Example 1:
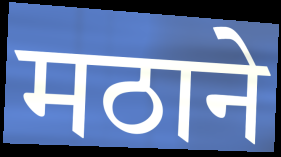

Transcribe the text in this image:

मठाने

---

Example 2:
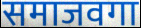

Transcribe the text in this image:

समाजवगा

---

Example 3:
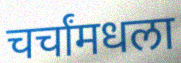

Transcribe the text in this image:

चर्चांमधला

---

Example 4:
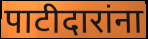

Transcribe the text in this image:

पाटीदारांना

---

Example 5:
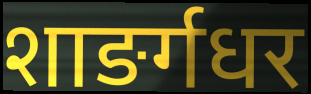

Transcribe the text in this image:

शाङर्गधर